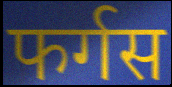
फर्गस